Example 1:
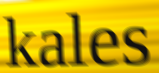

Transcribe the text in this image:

kales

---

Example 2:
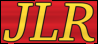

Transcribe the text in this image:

JLR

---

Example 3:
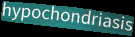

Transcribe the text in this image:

hypochondriasis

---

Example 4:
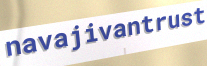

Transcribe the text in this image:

navajivantrust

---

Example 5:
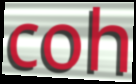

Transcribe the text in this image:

coh